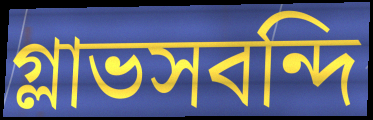
গ্লাভসবন্দি